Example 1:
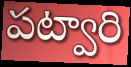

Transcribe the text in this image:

పట్వారి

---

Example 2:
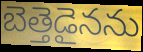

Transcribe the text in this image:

బెత్తెడైనను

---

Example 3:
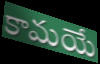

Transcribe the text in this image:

కామయే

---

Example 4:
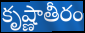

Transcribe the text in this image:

కృష్ణాతీరం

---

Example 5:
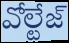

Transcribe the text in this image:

వోల్టేజ్